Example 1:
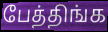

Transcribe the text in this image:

பேத்திங்க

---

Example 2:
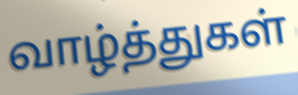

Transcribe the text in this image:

வாழ்த்துகள்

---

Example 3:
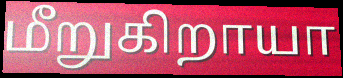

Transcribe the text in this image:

மீறுகிறாயா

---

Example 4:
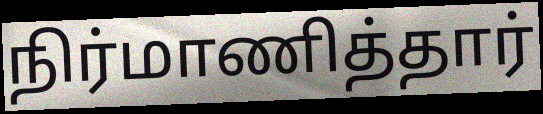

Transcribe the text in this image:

நிர்மாணித்தார்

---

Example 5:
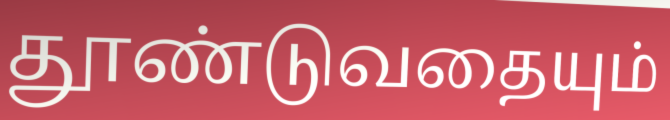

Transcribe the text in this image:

தூண்டுவதையும்